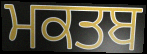
ਮਕਤਬ